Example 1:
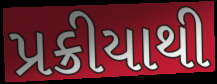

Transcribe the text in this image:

પ્રક્રીયાથી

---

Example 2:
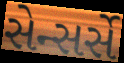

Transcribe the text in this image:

સેન્સર્સે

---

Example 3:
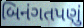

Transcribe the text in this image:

બિનંગતપણું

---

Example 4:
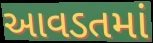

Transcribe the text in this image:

આવડતમાં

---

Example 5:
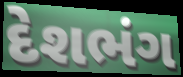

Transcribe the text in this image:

દેશભંગ